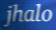
jhalo